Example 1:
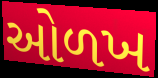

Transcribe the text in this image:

ઓળખ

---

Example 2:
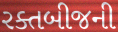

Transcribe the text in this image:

રક્તબીજની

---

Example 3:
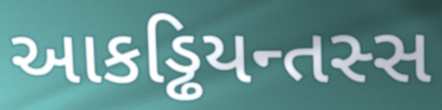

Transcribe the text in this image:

આકડ્ઢિયન્તસ્સ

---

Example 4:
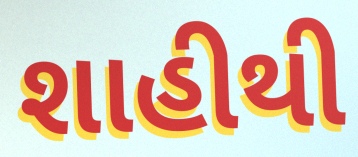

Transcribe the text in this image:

શાહીથી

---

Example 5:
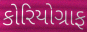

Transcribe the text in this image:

કોરિયોગ્રાફ